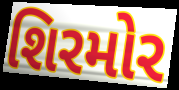
શિરમોર